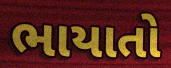
ભાયાતો